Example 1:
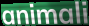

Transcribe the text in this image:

animali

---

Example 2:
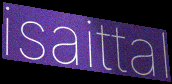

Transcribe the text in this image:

isaittal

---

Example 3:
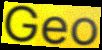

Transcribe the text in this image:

Geo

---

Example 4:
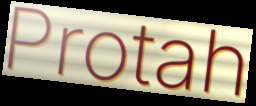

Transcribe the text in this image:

Protah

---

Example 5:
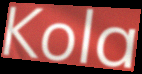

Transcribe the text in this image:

Kola